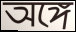
অঙ্গে